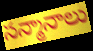
సన్మానాలు